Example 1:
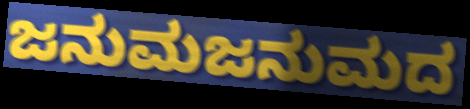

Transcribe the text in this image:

ಜನುಮಜನುಮದ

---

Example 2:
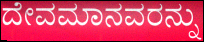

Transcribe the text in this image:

ದೇವಮಾನವರನ್ನು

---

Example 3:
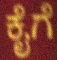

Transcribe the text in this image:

ಕೈಗೆ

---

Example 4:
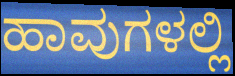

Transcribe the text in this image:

ಹಾವುಗಳಲ್ಲಿ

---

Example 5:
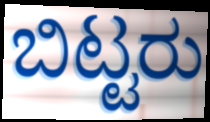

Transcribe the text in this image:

ಬಿಟ್ಟರು